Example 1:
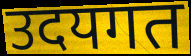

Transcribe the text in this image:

उदयगत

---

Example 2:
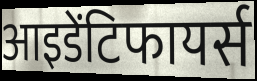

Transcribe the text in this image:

आइडेंटिफायर्स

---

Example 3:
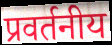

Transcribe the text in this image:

प्रवर्तनीय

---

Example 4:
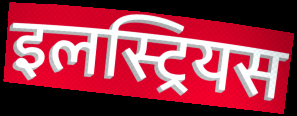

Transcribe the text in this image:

इलस्ट्रियस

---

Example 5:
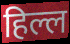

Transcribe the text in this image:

हिल्ल